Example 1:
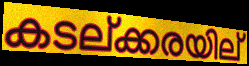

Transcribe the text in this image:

കടല്ക്കരയില്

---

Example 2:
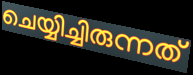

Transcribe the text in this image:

ചെയ്യിച്ചിരുന്നത്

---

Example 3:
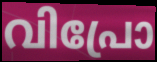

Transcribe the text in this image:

വിപ്രോ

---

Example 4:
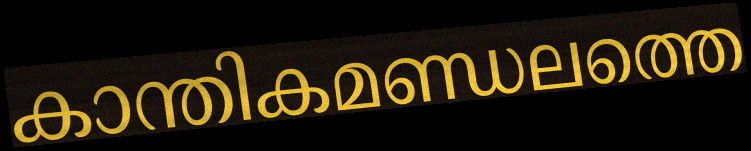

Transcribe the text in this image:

കാന്തികമണ്ഡലത്തെ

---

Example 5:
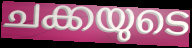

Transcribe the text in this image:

ചക്കയുടെ